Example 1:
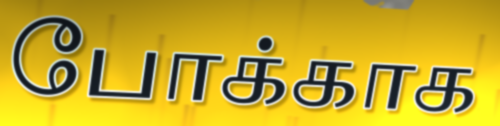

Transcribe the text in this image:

போக்காக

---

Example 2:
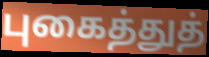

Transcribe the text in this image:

புகைத்துத்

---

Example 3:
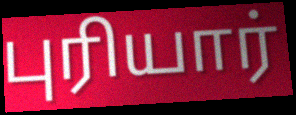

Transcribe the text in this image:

புரியார்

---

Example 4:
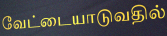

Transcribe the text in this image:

வேட்டையாடுவதில்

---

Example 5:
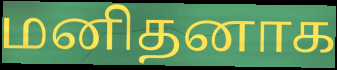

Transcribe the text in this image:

மனிதனாக